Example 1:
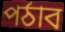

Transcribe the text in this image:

পঠাব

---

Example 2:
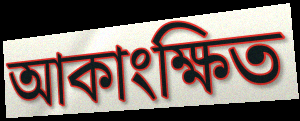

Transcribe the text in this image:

আকাংক্ষিত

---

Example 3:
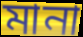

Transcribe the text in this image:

মানা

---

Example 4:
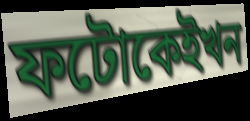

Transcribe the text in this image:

ফটোকেইখন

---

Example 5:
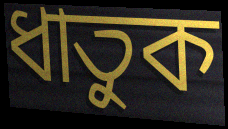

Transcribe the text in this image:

ধাতুক